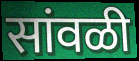
सांवळी